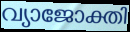
വ്യാജോക്തി